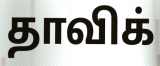
தாவிக்